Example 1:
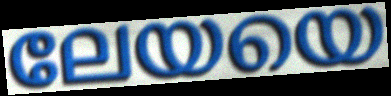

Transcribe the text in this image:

ലേയയെ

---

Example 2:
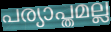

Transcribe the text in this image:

പര്യാപ്തമല്ല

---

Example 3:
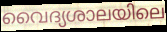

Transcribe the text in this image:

വൈദ്യശാലയിലെ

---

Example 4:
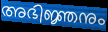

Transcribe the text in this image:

അഭിജ്ഞനും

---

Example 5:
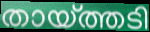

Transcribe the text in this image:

തായ്ത്തടി